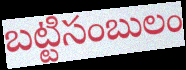
బట్టిసంబులం